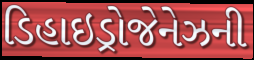
ડિહાઇડ્રોજેનેઝની